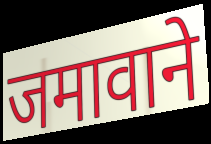
जमावाने